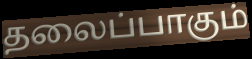
தலைப்பாகும்